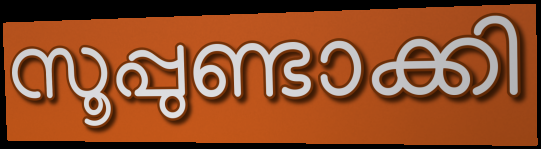
സൂപ്പുണ്ടാക്കി